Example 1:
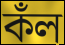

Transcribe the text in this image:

কঁল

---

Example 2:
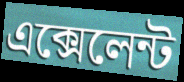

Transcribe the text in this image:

এক্সেলেন্ট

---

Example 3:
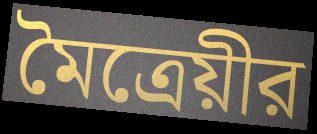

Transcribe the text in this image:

মৈত্রেয়ীর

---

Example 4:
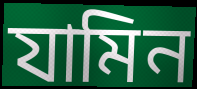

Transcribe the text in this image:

যামিন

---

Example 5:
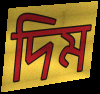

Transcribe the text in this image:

দিম